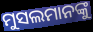
ମୁସଲମାନଙ୍କୁ